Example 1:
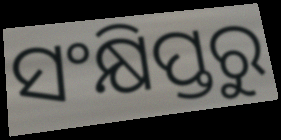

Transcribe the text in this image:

ସଂକ୍ଷିପ୍ତରୁ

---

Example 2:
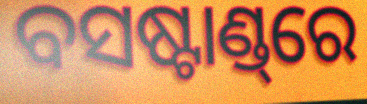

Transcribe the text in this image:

ବସଷ୍ଟାଣ୍ଡ୍‌ରେ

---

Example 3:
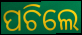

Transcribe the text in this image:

ପଚିଲେ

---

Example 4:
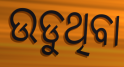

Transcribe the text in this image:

ଉଡୁଥିବା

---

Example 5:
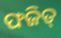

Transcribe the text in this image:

ଫଜିତ୍